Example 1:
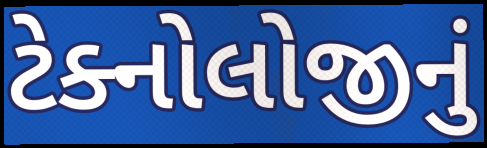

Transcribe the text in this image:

ટેક્નોલોજીનું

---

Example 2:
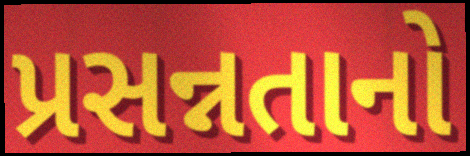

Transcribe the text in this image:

પ્રસન્નતાનો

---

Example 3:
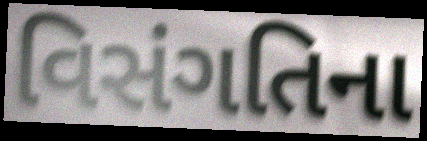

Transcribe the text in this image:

વિસંગતિના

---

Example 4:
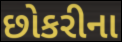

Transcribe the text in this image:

છોકરીના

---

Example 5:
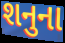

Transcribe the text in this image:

શનુના